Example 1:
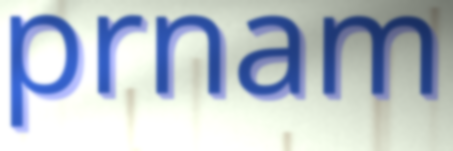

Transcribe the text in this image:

prnam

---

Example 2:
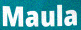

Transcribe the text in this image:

Maula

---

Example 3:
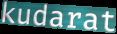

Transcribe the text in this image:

kudarat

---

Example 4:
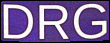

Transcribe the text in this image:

DRG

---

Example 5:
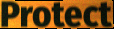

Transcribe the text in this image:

Protect